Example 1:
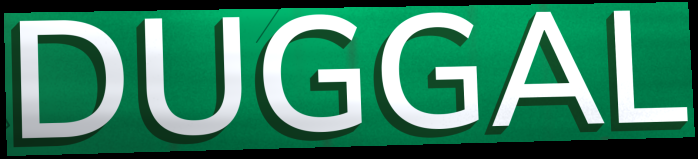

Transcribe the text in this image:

DUGGAL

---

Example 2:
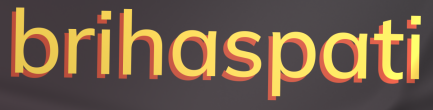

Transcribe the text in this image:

brihaspati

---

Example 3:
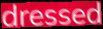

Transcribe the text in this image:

dressed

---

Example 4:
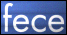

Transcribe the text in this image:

fece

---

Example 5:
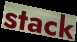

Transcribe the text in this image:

stack